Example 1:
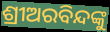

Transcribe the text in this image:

ଶ୍ରୀଅରବିନ୍ଦଙ୍କୁ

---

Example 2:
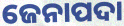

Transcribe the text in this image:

ଜେନାପଦା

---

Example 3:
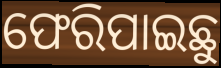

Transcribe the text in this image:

ଫେରିପାଇଛୁ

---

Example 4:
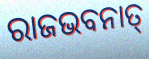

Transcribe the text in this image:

ରାଜଭବନାତ୍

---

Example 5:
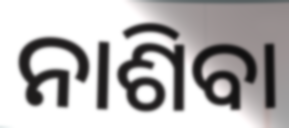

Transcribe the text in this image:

ନାଶିବା